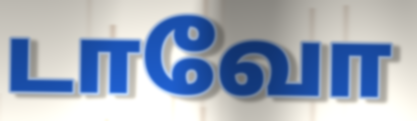
டாவோ